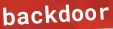
backdoor